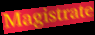
Magistrate